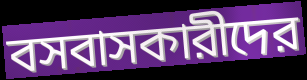
বসবাসকারীদের